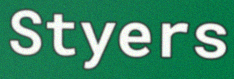
Styers